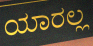
ಯಾರಲ್ಲ